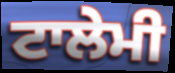
ਟਾਲੇਮੀ